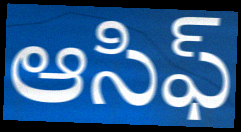
ఆసిఫ్